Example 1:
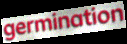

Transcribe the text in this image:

germination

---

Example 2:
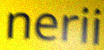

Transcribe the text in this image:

nerii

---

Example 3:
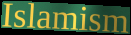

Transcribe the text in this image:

Islamism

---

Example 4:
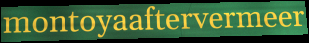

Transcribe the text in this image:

montoyaaftervermeer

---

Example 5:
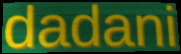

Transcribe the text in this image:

dadani